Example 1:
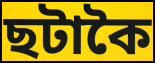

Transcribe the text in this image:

ছটাকৈ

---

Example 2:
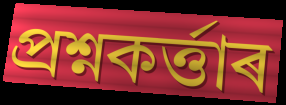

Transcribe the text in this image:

প্ৰশ্নকৰ্ত্তাৰ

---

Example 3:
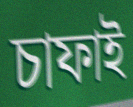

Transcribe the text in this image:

চাফাই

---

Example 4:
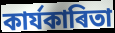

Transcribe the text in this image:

কাৰ্যকাৰিতা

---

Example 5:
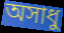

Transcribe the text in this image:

অসাধু